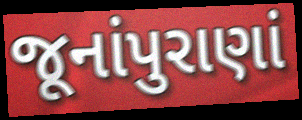
જૂનાંપુરાણાં